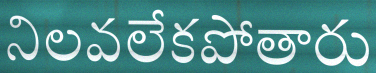
నిలవలేకపోతారు